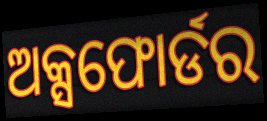
ଅକ୍ସଫୋର୍ଡର